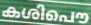
കശിപൌ